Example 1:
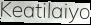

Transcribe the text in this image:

Keatilaiyo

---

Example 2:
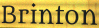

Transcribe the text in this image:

Brinton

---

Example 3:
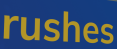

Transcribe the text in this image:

rushes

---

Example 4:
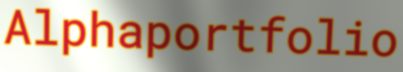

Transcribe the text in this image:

Alphaportfolio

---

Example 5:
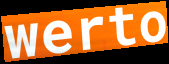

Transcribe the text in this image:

werto